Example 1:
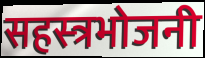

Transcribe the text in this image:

सहस्त्रभोजनी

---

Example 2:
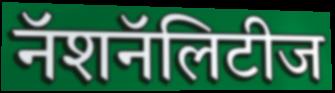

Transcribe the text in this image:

नॅशनॅलिटीज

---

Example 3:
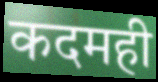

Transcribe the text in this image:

कदमही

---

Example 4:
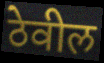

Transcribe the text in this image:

ठेवील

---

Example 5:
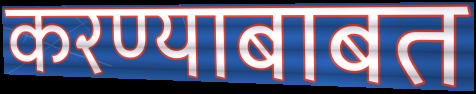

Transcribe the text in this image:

करण्याबाबत